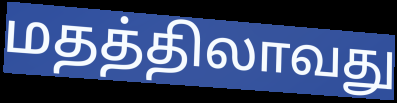
மதத்திலாவது